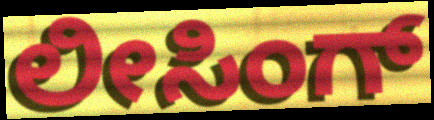
ಲೀಸಿಂಗ್